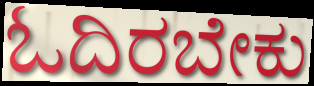
ಓದಿರಬೇಕು